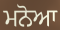
ਮਨੋਆ